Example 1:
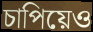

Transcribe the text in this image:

চাপিয়েও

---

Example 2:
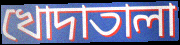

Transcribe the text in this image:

খোদাতালা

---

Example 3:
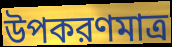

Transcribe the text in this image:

উপকরণমাত্র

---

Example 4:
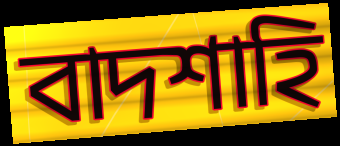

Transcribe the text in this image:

বাদশাহি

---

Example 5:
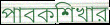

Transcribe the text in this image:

পাবকশিখার